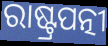
ରାଷ୍ଟ୍ରପତ୍ନୀ